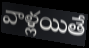
వాళ్లయితే